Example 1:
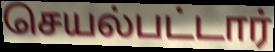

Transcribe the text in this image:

செயல்பட்டார்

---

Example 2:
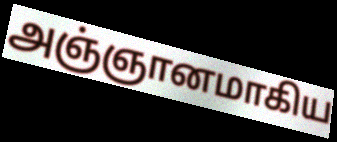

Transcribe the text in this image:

அஞ்ஞானமாகிய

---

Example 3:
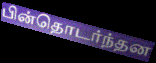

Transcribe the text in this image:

பின்தொடர்ந்தன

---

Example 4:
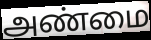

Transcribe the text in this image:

அண்மை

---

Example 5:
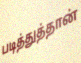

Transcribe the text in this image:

படித்துத்தான்